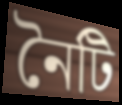
নৈটি